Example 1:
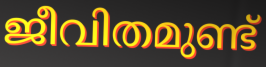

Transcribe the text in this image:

ജീവിതമുണ്ട്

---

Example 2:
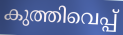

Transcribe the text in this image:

കുത്തിവെപ്പ്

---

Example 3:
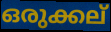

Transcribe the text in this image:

ഒരുക്കല്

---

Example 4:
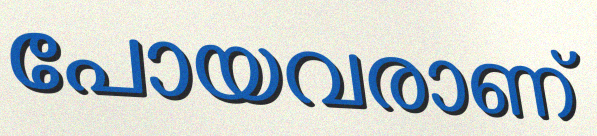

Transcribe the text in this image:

പോയവരാണ്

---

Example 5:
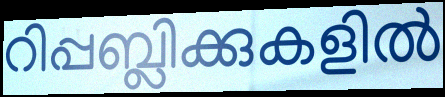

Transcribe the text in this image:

റിപ്പബ്ലിക്കുകളിൽ